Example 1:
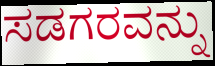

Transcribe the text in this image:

ಸಡಗರವನ್ನು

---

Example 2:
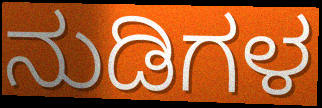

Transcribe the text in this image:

ನುಡಿಗಳ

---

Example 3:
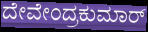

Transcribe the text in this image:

ದೇವೇಂದ್ರಕುಮಾರ್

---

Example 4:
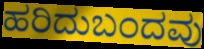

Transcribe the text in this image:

ಹರಿದುಬಂದವು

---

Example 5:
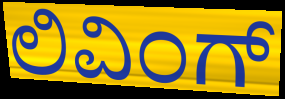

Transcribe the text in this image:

ಲಿವಿಂಗ್